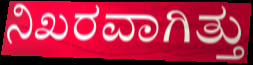
ನಿಖರವಾಗಿತ್ತು